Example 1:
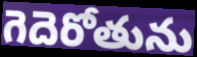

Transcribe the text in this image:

గెదెరోతును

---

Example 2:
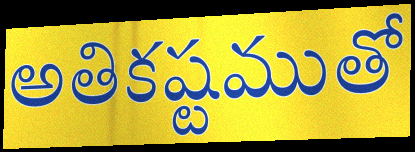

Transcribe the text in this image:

అతికష్టముతో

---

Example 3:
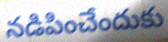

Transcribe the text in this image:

నడిపించేందుకు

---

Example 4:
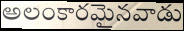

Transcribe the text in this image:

అలంకారమైనవాడు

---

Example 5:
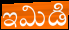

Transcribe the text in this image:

ఇమిడి